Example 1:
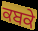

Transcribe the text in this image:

ਕਬਕੇ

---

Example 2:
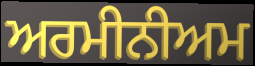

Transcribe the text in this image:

ਅਰਮੀਨੀਅਮ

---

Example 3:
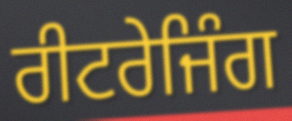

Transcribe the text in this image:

ਰੀਟਰੇਜਿੰਗ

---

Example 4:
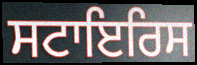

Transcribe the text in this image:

ਸਟਾਇਰਿਸ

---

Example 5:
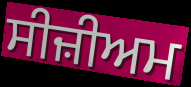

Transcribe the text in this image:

ਸੀਜ਼ੀਅਮ